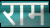
राम